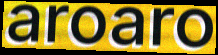
aroaro